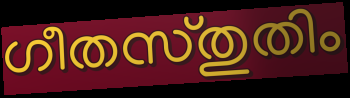
ഗീതസ്തുതിം